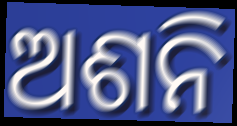
ଅଶନି